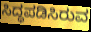
ಸಿದ್ಧಪಡಿಸಿರುವ